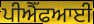
ਪੀਐੱਫਆਈ